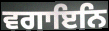
ਵਗਾਇਨਿ